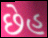
છેહ